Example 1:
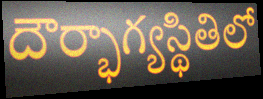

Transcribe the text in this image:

దౌర్భాగ్యస్థితిలో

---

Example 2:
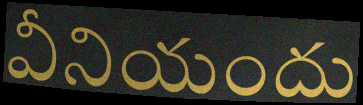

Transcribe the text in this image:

వీనియందు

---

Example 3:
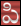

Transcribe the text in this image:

పి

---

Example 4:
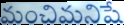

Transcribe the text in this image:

మంచిమనిషే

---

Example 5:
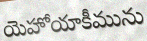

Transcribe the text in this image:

యెహోయాకీమును